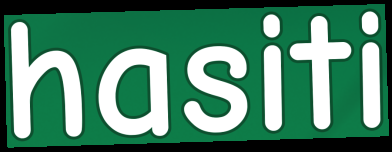
hasiti